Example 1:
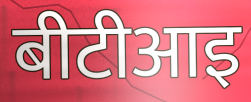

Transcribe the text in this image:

बीटीआइ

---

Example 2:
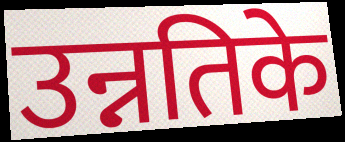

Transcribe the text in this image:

उन्नतिके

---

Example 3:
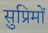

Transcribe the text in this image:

सुप्रिमों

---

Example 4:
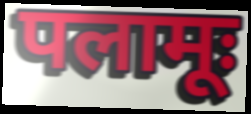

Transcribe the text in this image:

पलामूः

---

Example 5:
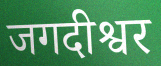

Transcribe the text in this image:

जगदीश्वर